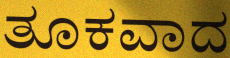
ತೂಕವಾದ